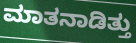
ಮಾತನಾಡಿತ್ತು